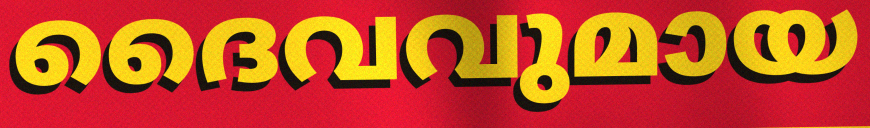
ദൈവവുമായ